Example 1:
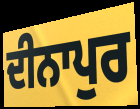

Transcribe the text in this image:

ਦੀਨਾਪੁਰ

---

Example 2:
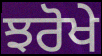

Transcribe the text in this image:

ਝਰੋਖੇ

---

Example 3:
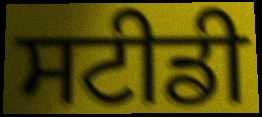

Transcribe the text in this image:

ਸਟੀਡੀ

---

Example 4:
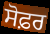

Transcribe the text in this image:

ਸੋਫ਼ਰ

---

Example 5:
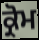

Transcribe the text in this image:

ਕ੍ਰੋਮ